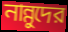
নান্নুদের